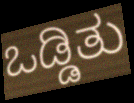
ಒಡ್ಡಿತು